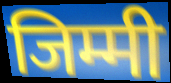
जिम्मी